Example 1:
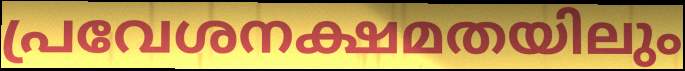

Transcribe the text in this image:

പ്രവേശനക്ഷമതയിലും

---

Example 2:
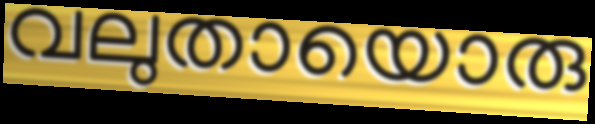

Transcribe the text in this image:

വലുതായൊരു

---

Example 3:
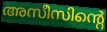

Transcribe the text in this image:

അസീസിന്റെ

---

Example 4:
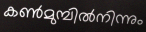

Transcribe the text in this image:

കൺമുമ്പിൽനിന്നും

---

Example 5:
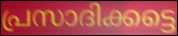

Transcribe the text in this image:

പ്രസാദിക്കട്ടെ